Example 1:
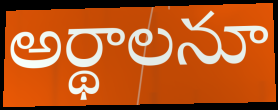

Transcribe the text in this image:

అర్థాలనూ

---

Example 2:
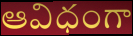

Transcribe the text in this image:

ఆవిధంగా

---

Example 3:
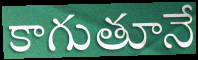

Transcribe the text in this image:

కాగుతూనే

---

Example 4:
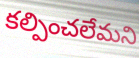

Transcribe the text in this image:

కల్పించలేమని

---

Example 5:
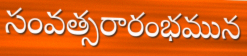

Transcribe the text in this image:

సంవత్సరారంభమున